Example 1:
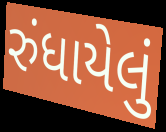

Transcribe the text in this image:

રુંધાયેલું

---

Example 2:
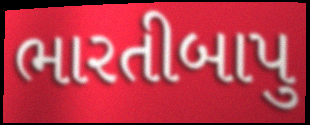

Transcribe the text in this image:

ભારતીબાપુ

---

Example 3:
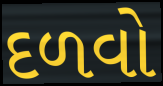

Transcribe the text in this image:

દળવો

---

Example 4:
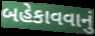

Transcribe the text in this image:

બહેકાવવાનું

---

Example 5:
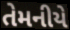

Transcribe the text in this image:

તેમનીયે